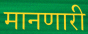
मानणारी